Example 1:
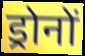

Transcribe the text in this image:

ड्रोनों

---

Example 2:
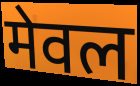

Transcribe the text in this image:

मेवल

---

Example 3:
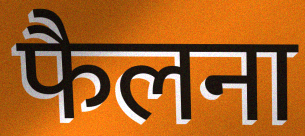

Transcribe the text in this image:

फैलना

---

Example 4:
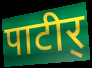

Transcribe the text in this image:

पाटीर्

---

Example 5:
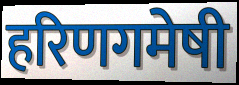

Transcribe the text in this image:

हरिणगमेषी